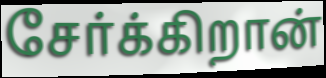
சேர்க்கிறான்